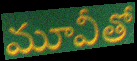
మూవీతో